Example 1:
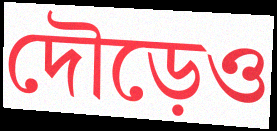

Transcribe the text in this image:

দৌড়েও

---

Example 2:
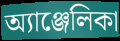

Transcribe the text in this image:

অ্যাঞ্জেলিকা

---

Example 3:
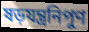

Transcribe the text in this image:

ষড়যন্ত্রনিপুণ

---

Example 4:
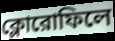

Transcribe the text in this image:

ক্লোরোফিলে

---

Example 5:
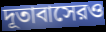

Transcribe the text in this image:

দূতাবাসেরও